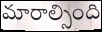
మారాల్సింది